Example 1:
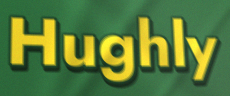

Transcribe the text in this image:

Hughly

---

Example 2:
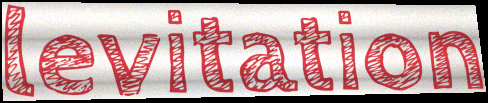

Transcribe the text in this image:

levitation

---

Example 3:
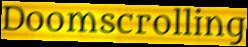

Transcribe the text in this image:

Doomscrolling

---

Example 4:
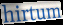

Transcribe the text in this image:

hirtum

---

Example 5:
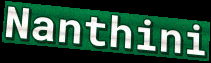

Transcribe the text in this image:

Nanthini